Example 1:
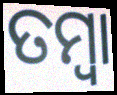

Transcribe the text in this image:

ତମ୍ୱା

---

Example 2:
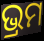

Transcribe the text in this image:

ଭ୍ରମ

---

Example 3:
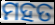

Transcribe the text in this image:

ମହତ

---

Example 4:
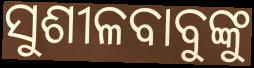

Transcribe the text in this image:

ସୁଶୀଳବାବୁଙ୍କୁ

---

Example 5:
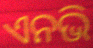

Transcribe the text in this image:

ଏନଭି